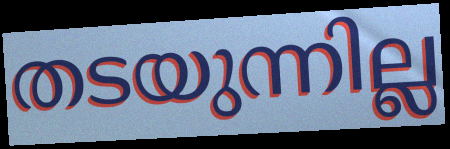
തടയുന്നില്ല